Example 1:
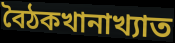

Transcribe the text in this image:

বৈঠকখানাখ্যাত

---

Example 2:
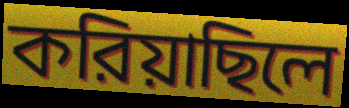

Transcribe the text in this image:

করিয়াছিলে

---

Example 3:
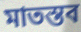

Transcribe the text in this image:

মাতস্তব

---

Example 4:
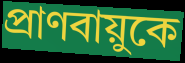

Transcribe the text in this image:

প্রাণবায়ুকে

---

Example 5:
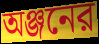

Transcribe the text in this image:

অঞ্জনের